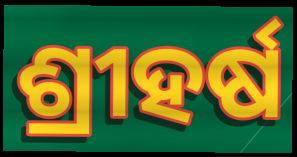
ଶ୍ରୀହର୍ଷ